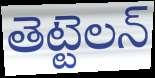
తెట్టెలన్